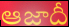
ఆజాదీ